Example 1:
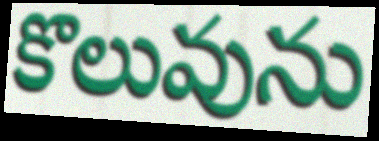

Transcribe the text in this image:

కొలువును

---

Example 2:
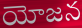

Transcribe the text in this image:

యోజన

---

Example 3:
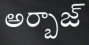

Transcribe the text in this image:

అర్బాజ్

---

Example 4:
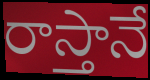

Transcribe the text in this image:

రాస్తానే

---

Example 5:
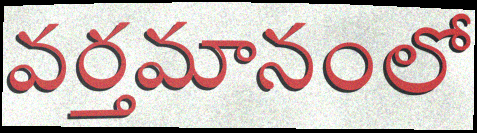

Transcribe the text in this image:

వర్తమానంలో